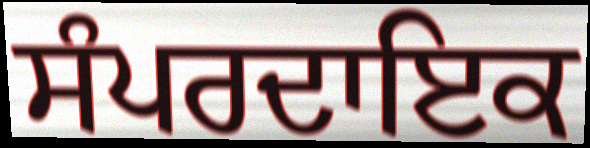
ਸੰਪਰਦਾਇਕ